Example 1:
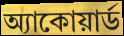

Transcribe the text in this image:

অ্যাকোয়ার্ড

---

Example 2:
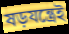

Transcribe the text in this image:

ষড়যন্ত্রেই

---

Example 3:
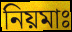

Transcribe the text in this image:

নিয়মাঃ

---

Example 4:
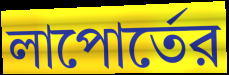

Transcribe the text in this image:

লাপোর্তের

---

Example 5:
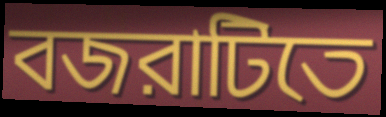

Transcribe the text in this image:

বজরাটিতে